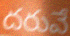
దరువే